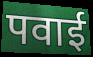
पवाई